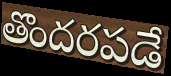
తొందరపడే